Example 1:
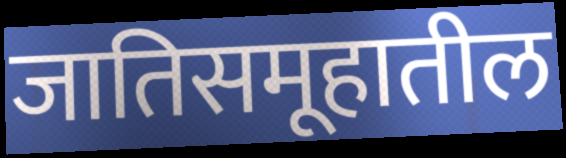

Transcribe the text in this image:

जातिसमूहातील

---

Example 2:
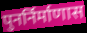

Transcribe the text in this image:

पुनर्निर्माणास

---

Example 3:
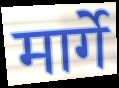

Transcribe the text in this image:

मार्गे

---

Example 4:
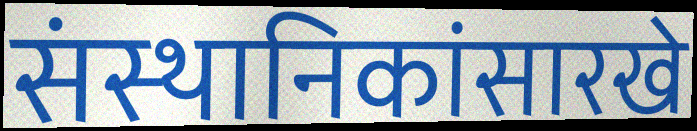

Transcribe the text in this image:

संस्थानिकांसारखे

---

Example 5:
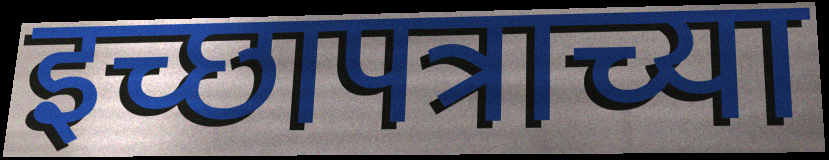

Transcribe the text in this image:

इच्छापत्राच्या